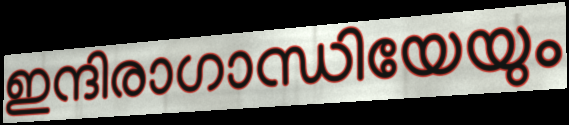
ഇന്ദിരാഗാന്ധിയേയും